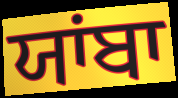
ਯਾਂਬਾ